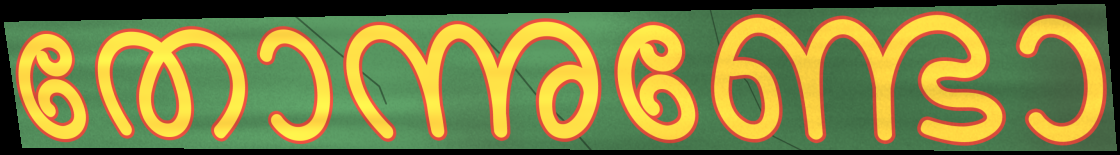
തോന്നുണ്ടോ